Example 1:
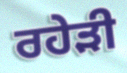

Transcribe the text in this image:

ਰਹੇੜੀ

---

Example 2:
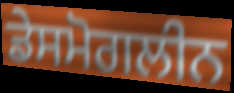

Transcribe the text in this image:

ਡੇਸਮੋਗਲੀਨ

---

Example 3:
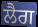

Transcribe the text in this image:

ਲੈਗ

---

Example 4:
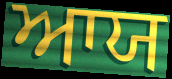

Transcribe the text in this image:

ਆਯ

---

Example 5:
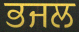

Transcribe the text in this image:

ਭਜਲ